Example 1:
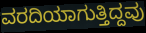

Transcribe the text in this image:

ವರದಿಯಾಗುತ್ತಿದ್ದವು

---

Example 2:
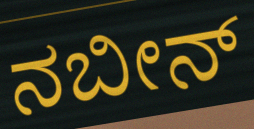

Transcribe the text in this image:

ನಬೀನ್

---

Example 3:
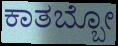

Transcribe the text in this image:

ಕಾತಬ್ಬೋ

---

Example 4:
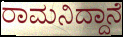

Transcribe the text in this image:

ರಾಮನಿದ್ದಾನೆ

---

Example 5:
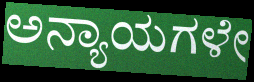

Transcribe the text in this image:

ಅನ್ಯಾಯಗಳೇ